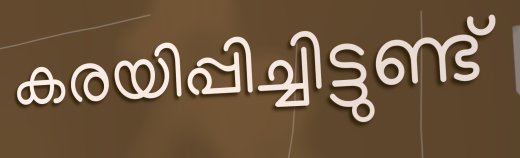
കരയിപ്പിച്ചിട്ടുണ്ട്